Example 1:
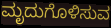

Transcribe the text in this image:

ಮೃದುಗೊಳಿಸುವ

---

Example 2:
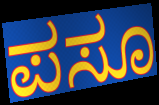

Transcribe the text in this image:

ಪಸೂ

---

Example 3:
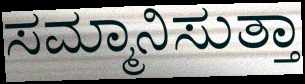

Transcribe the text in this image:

ಸಮ್ಮಾನಿಸುತ್ತಾ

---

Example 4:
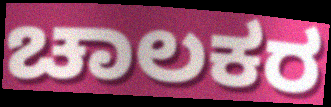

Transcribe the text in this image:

ಚಾಲಕರ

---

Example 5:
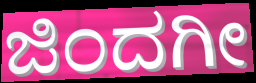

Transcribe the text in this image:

ಜಿಂದಗೀ